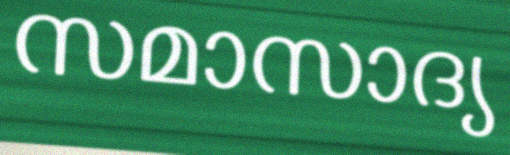
സമാസാദ്യ